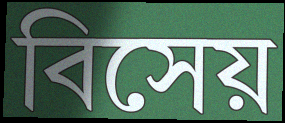
বিসেয়